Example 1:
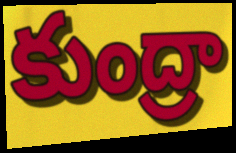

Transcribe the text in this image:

కుంద్రా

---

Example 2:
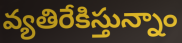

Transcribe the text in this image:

వ్యతిరేకిస్తున్నాం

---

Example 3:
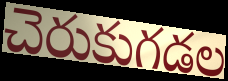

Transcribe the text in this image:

చెరుకుగడల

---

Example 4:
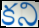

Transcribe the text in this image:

కని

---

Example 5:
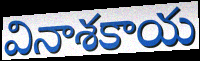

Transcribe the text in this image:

వినాశకాయ